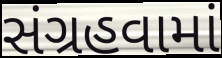
સંગ્રહવામાં